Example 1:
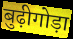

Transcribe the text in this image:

बुढ़ीगोड़ा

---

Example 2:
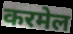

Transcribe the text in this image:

करमेल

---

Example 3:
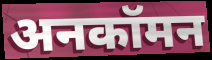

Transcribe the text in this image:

अनकॉमन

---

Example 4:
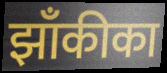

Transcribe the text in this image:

झाँकीका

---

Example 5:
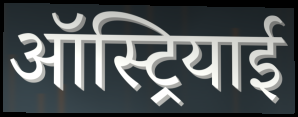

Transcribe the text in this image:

ऑस्ट्रियाई